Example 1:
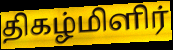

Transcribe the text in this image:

திகழ்மிளிர்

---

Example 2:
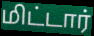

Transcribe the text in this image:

மிட்டார்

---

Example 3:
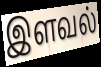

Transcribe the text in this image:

இளவல்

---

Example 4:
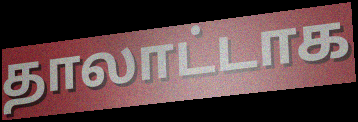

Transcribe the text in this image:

தாலாட்டாக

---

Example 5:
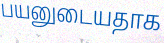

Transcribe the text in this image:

பயனுடையதாக